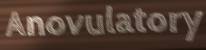
Anovulatory